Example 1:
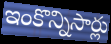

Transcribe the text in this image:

ఇంకొన్నిసార్లు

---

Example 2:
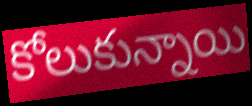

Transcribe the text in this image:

కోలుకున్నాయి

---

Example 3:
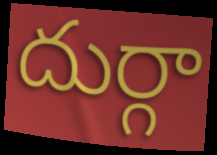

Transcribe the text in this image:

దుర్గా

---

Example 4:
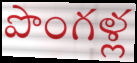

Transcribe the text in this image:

పొంగళ్ల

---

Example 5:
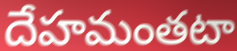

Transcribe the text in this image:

దేహమంతటా